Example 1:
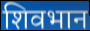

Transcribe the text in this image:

शिवभान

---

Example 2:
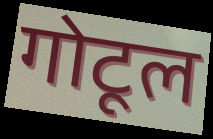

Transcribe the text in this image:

गोटूल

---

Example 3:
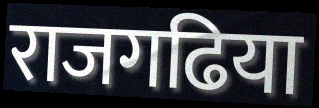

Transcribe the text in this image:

राजगढिया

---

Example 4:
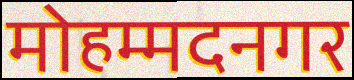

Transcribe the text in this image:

मोहम्मदनगर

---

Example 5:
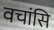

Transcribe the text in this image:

वचांसि